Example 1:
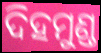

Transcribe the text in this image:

ଦିହମୁଣ୍ଡ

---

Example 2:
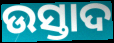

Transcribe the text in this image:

ଉସ୍ତାଦ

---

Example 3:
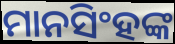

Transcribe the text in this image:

ମାନସିଂହଙ୍କ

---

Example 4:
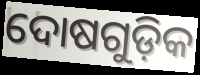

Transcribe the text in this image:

ଦୋଷଗୁଡ଼ିକ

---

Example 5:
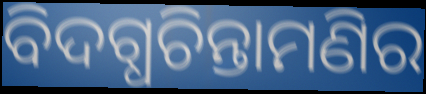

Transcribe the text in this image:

ବିଦଗ୍ଧଚିନ୍ତାମଣିର